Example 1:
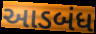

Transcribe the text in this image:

આડબંધ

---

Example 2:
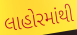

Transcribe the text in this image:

લાહોરમાંથી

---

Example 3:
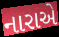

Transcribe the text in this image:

નારાએ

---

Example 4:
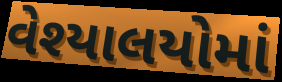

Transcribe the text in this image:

વેશ્યાલયોમાં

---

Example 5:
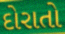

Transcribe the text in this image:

દોરાતો